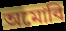
অমোবি